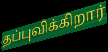
தப்புவிக்கிறார்